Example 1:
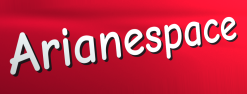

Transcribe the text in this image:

Arianespace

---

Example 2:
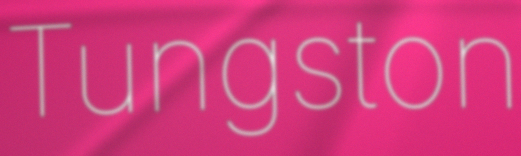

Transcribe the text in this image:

Tungston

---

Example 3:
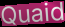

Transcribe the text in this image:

Quaid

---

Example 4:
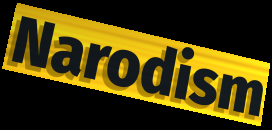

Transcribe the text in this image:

Narodism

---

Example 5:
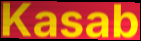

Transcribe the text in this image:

Kasab